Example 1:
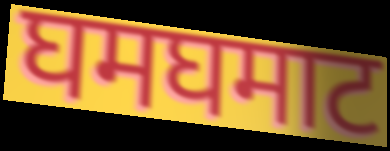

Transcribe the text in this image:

घमघमाट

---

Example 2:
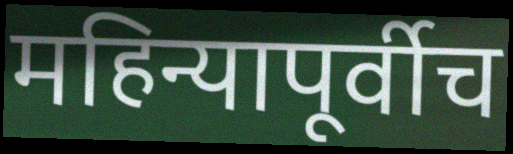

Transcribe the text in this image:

महिन्यापूर्वीच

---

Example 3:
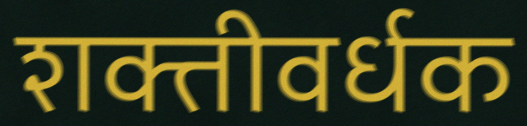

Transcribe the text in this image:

शक्तीवर्धक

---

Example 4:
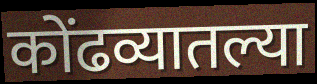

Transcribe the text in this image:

कोंढव्यातल्या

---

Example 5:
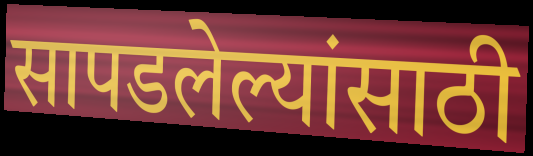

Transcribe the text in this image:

सापडलेल्यांसाठी